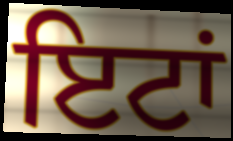
ਇਟਾਂ